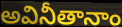
అవినీతానాం